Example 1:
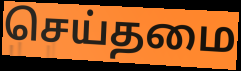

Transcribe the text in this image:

செய்தமை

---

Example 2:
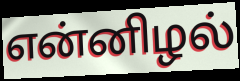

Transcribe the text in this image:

என்னிழல்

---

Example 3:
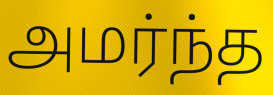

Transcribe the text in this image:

அமர்ந்த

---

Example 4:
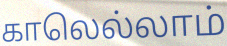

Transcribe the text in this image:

காலெல்லாம்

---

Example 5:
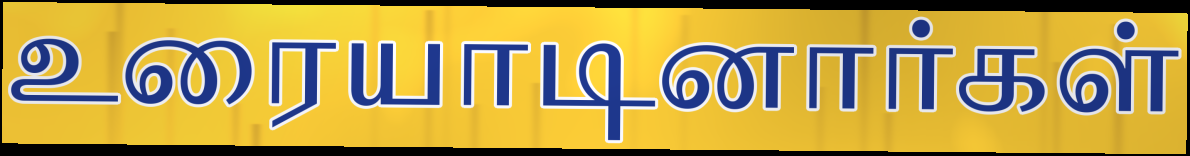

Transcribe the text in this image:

உரையாடினார்கள்